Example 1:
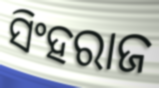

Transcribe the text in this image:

ସିଂହରାଜ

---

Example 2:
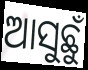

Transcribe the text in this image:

ଆସୁଛୁଁ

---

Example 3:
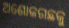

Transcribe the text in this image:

ଅଶୋକଗଛକୁ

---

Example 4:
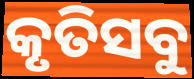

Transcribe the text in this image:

କୃତିସବୁ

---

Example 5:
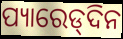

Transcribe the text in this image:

ପ୍ୟାରେଡ୍‌ଦିନ